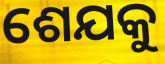
ଶେଯକୁ